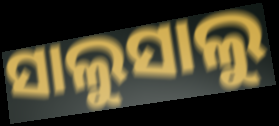
ସାଲୁସାଲୁ